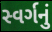
સ્વર્ગનું